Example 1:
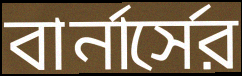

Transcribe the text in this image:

বার্নার্সের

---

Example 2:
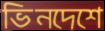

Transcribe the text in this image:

ভিনদেশে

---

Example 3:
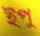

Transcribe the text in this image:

ইপু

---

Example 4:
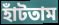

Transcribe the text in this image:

হাঁটতাম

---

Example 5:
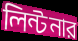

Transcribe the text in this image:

লিন্টনার